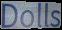
Dolls